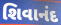
શિવાનંદ